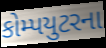
કોમ્પયુટરના